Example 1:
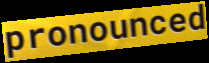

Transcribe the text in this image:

pronounced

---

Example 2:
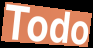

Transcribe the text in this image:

Todo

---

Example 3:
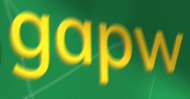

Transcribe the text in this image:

gapw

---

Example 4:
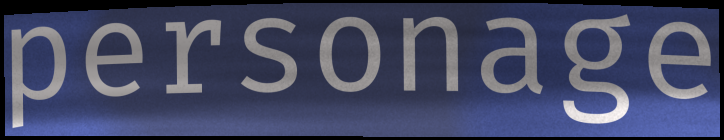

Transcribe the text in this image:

personage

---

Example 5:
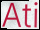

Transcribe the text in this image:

Ati